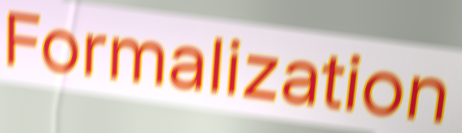
Formalization